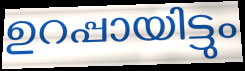
ഉറപ്പായിട്ടും